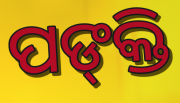
ପଙ୍‍କ୍ତି